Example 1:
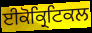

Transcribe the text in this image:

ਈਕੋਕ੍ਰਿਟਿਕਲ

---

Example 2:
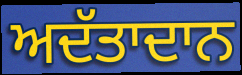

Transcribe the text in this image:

ਅਦੱਤਾਦਾਨ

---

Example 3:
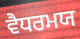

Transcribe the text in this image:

ਵੈਧਰਮਯ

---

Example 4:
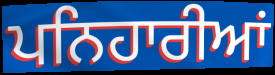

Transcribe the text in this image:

ਪਨਿਹਾਰੀਆਂ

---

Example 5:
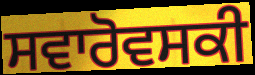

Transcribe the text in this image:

ਸਵਾਰੋਵਸਕੀ